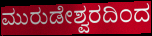
ಮುರುಡೇಶ್ವರದಿಂದ